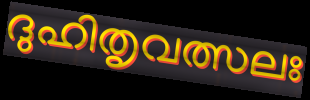
ദുഹിതൃവത്സലഃ